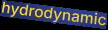
hydrodynamic